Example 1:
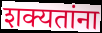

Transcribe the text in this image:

शक्यतांना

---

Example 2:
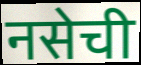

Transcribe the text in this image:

नसेची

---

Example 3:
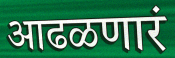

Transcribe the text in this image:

आढळणारं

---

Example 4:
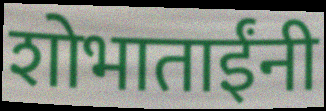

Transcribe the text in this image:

शोभाताईंनी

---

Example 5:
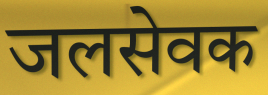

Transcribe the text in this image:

जलसेवक